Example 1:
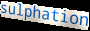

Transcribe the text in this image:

sulphation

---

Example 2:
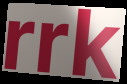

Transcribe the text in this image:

rrk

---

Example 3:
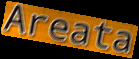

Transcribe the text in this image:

Areata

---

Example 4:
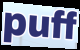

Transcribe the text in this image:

puff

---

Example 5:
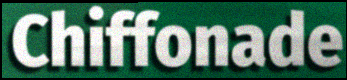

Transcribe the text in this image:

Chiffonade